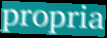
propria